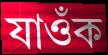
যাওঁক